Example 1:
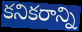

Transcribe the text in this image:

కనికరాన్ని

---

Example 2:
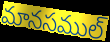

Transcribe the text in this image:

మానసముల్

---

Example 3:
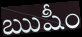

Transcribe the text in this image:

ఋషీం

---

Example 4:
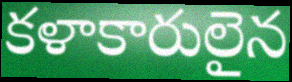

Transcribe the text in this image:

కళాకారులైన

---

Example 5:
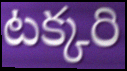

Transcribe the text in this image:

టక్కరి